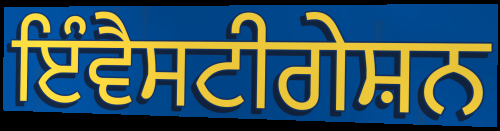
ਇੰਵੈਸਟੀਗੇਸ਼ਨ